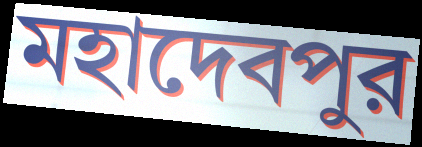
মহাদেবপুর